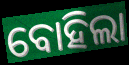
ବୋହିଲା